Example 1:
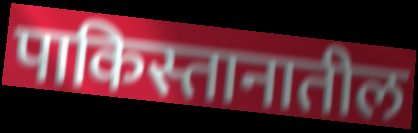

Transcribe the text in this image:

पाकिस्‍तानातील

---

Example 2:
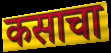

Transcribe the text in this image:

कसाचा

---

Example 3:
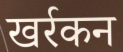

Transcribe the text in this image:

खर्रकन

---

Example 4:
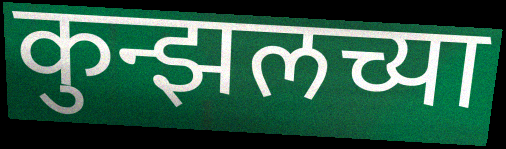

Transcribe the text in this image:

कुन्झलच्या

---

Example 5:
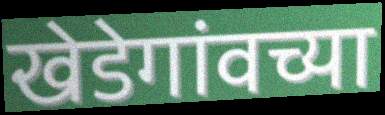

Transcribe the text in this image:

खेडेगांवच्या